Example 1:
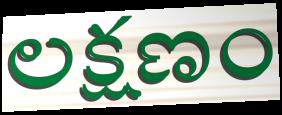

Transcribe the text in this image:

లక్షణం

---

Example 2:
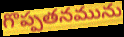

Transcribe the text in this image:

గొప్పతనమును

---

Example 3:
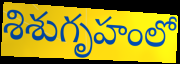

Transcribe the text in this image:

శిశుగృహంలో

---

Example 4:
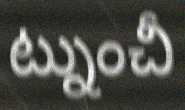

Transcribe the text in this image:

ట్నుంచీ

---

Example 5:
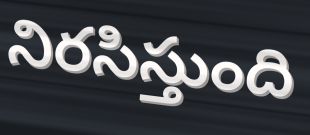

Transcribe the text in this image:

నిరసిస్తుంది